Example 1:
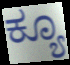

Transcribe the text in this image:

ಕ್ಯೂ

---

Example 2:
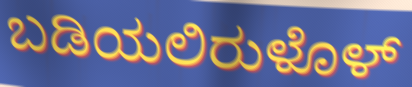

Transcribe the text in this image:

ಬಡಿಯಲಿರುಳೊಳ್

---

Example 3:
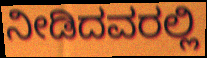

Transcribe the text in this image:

ನೀಡಿದವರಲ್ಲಿ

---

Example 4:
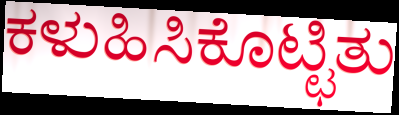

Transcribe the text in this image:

ಕಳುಹಿಸಿಕೊಟ್ಟಿತು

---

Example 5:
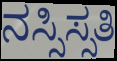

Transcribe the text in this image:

ನಸ್ಸಿಸ್ಸತಿ